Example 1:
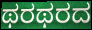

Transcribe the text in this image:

ಥರಥರದ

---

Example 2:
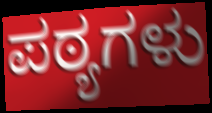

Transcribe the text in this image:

ಪಠ್ಯಗಳು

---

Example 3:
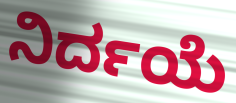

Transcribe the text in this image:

ನಿರ್ದಯೆ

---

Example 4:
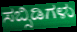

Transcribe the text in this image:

ಸಬ್ಸಿಡಿಗಳು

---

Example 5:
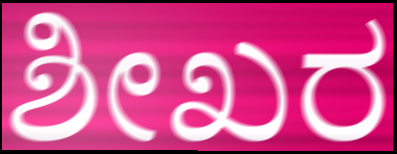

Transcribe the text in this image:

ಶೀಖರ